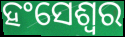
ହଂସେଶ୍ୱର